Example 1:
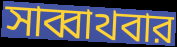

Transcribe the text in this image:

সাব্বাথবার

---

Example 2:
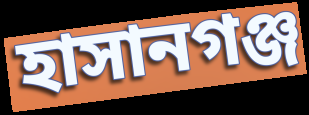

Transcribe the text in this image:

হাসানগঞ্জ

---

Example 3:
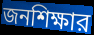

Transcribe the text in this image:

জনশিক্ষার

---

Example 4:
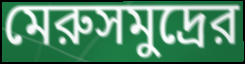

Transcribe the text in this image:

মেরুসমুদ্রের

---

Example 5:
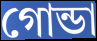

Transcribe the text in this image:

গোন্ডা